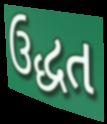
ઉદ્ધત